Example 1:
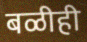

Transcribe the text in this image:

बळीही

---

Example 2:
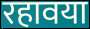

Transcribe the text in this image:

रहावया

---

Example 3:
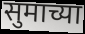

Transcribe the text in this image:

सुमाच्या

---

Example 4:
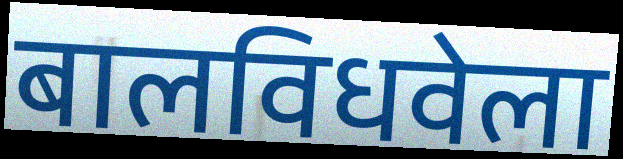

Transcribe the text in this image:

बालविधवेला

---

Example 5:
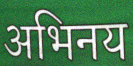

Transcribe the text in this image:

अभिनय